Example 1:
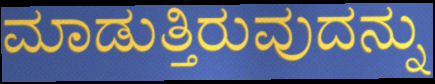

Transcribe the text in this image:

ಮಾಡುತ್ತಿರುವುದನ್ನು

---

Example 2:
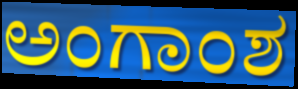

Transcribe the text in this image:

ಅಂಗಾಂಶ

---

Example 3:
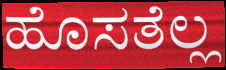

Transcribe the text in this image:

ಹೊಸತೆಲ್ಲ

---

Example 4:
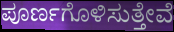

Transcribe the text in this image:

ಪೂರ್ಣಗೊಳಿಸುತ್ತೇವೆ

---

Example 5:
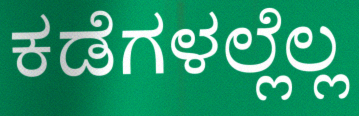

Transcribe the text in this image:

ಕಡೆಗಳಲ್ಲೆಲ್ಲ